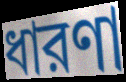
ধারণা